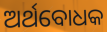
ଅର୍ଥବୋଧକ